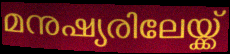
മനുഷ്യരിലേയ്ക്ക്